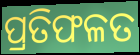
ପ୍ରତିଫଳତ